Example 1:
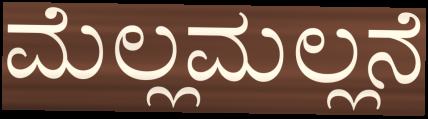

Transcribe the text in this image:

ಮೆಲ್ಲಮಲ್ಲನೆ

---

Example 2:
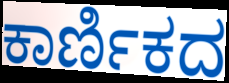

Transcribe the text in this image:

ಕಾರ್ಣಿಕದ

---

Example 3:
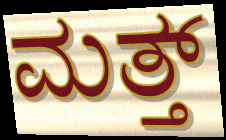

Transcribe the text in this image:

ಮತ್ತ್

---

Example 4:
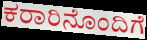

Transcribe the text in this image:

ಕರಾರಿನೊಂದಿಗೆ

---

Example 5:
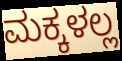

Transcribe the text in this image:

ಮಕ್ಕಳಲ್ಲ